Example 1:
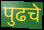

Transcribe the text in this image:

पुढचे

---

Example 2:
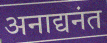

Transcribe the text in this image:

अनाद्यनंत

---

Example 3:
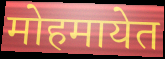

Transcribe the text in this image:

मोहमायेत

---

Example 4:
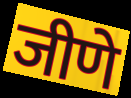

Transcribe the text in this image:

जीणे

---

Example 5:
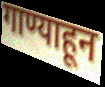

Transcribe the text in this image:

गाण्याहून